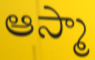
ఆస్మా